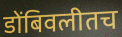
डोंबिवलीतच